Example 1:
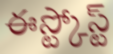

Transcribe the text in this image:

ఈస్ట్కోస్ట్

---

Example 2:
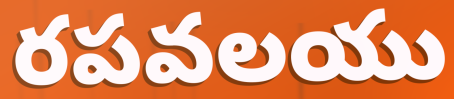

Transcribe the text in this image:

రపవలయు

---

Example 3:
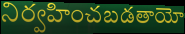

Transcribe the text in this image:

నిర్వహించబడతాయో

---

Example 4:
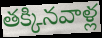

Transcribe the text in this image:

తక్కినవాళ్ల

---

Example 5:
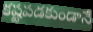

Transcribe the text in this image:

కష్టపడకుండానే